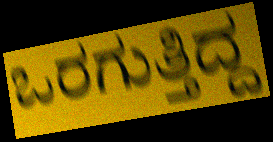
ಒರಗುತ್ತಿದ್ದ